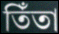
তিঁতা